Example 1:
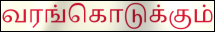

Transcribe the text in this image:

வரங்கொடுக்கும்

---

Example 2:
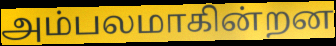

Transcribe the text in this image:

அம்பலமாகின்றன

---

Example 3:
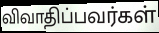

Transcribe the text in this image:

விவாதிப்பவர்கள்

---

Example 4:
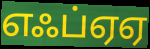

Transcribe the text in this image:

எஃப்ஏஏ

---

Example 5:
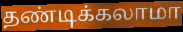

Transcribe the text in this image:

தண்டிக்கலாமா